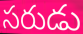
సరుడు